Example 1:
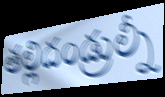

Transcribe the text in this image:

తల్లిదండ్రుల్నీ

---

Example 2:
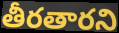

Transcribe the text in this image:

తీరతారని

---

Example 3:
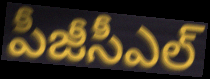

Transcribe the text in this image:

పీజీసీఎల్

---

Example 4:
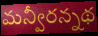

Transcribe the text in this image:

మన్వీరన్నథ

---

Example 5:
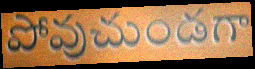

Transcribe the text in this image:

పోవుచుండగా